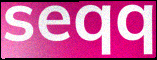
seqq